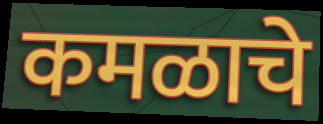
कमळाचे